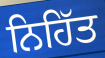
ਨਿਹਿੱਤ